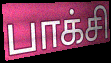
பாக்சி